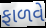
ફાળવે